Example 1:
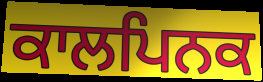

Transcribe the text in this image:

ਕਾਲਪਿਨਕ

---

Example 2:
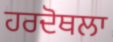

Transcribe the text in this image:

ਹਰਦੋਥਲਾ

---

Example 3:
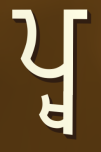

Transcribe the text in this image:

ਪ੍ਥ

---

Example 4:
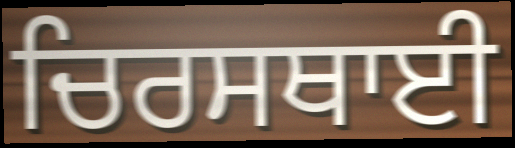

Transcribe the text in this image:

ਚਿਰਸਥਾਈ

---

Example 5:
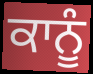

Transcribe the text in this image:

ਕਾਨੂੰ